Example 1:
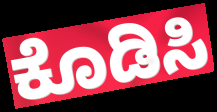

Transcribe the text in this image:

ಕೊಡಿಸಿ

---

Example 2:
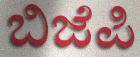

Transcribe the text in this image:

ಬಿಜೆಪಿ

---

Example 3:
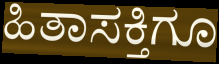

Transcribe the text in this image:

ಹಿತಾಸಕ್ತಿಗೂ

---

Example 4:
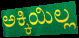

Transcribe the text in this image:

ಅಕ್ಕಿಯಿಲ್ಲ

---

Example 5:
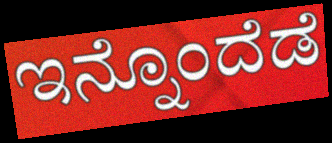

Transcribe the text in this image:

ಇನ್ನೊಂದೆಡೆ